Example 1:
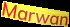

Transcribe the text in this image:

Marwan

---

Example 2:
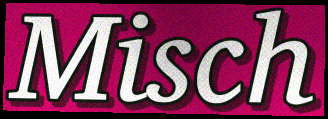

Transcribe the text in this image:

Misch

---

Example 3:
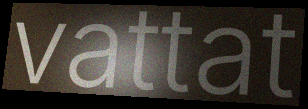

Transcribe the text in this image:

vattat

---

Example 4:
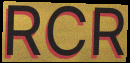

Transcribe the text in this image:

RCR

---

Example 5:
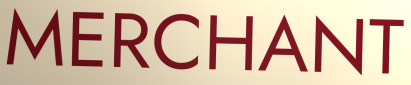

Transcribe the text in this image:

MERCHANT